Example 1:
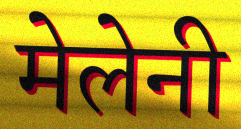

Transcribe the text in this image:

मेलेनी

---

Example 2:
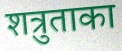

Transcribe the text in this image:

शत्रुताका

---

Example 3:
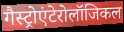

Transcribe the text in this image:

गैस्ट्रोएंटेरोलॉजिकल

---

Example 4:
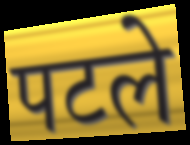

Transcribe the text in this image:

पटले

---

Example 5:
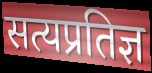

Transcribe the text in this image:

सत्यप्रतिज्ञ